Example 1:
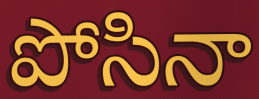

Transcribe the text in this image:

పోసినా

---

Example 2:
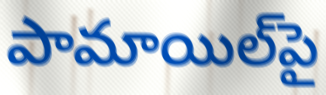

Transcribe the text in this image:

పామాయిల్‌పై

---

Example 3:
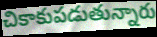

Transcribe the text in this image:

చికాకుపడుతున్నారు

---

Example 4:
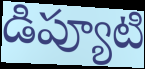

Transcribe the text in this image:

డిప్యూటి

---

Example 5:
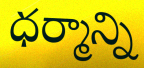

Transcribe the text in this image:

ధర్మాన్ని